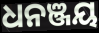
ଧନଞ୍ଜୟ